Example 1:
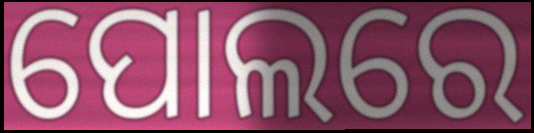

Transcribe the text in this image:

ପୋଲରେ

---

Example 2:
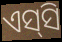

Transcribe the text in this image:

ଏସ୍‌ସି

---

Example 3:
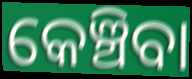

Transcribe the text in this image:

କେଞ୍ଚିବା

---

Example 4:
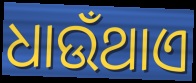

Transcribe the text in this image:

ଧାଉଁଥାଏ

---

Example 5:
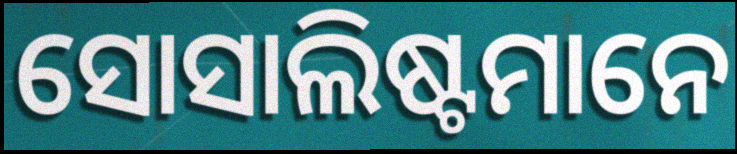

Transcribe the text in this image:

ସୋସାଲିଷ୍ଟମାନେ